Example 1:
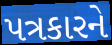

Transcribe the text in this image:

પત્રકારને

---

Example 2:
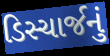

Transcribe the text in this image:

ડિસ્ચાર્જનું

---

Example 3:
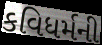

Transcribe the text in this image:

કવિધર્મની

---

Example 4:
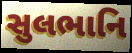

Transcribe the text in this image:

સુલભાનિ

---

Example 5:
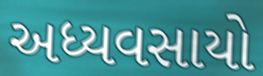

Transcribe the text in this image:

અધ્યવસાયો